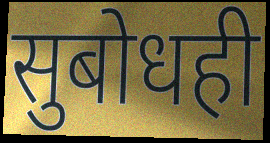
सुबोधही